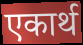
एकार्थ